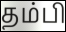
தம்பி